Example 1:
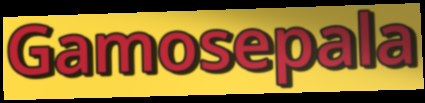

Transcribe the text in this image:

Gamosepala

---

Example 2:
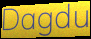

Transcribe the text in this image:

Dagdu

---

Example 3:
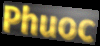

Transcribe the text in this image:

Phuoc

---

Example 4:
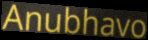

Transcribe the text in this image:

Anubhavo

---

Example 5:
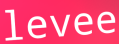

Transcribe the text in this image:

levee